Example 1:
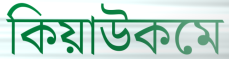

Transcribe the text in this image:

কিয়াউকমে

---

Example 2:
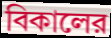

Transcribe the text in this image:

বিকালের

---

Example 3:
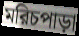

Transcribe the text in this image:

মরিচপাড়া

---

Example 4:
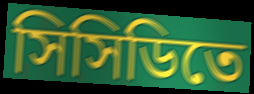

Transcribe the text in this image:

সিসিডিতে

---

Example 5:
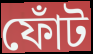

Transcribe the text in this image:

ফোঁট